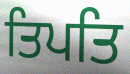
ਤਿਪਤਿ